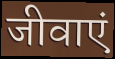
जीवाएं